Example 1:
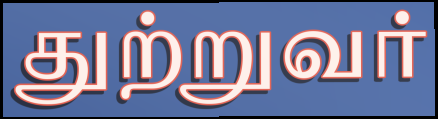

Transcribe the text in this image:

துற்றுவர்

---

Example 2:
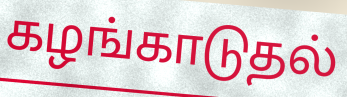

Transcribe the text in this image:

கழங்காடுதல்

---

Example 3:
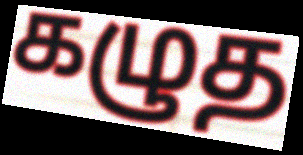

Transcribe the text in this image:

கழுத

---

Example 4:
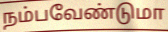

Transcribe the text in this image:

நம்பவேண்டுமா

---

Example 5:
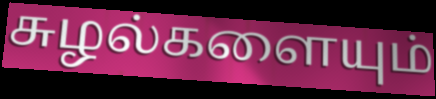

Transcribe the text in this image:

சுழல்களையும்